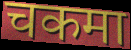
चकमा